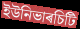
ইউনিভাৰচিটি